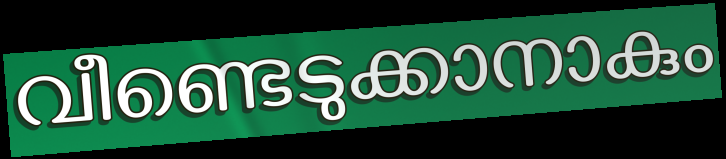
വീണ്ടെടുക്കാനാകും